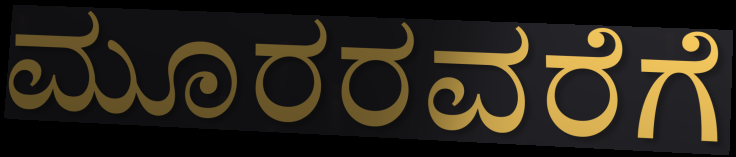
ಮೂರರವರೆಗೆ